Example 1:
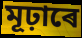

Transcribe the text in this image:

মূঢ়াৰে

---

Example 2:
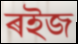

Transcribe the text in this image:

ৰইজ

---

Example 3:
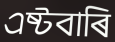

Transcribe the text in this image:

এষ্টবাৰি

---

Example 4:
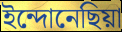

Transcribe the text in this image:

ইন্দোনেছিয়া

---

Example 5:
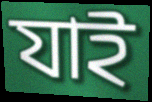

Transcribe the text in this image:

যাই